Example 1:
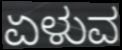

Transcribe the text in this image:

ಏಳುವ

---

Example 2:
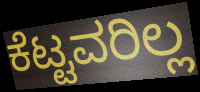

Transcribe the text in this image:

ಕೆಟ್ಟವರಿಲ್ಲ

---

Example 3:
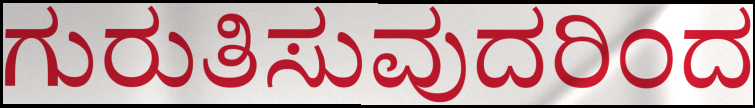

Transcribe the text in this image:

ಗುರುತಿಸುವುದರಿಂದ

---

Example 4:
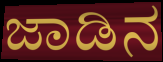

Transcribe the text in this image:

ಜಾಡಿನ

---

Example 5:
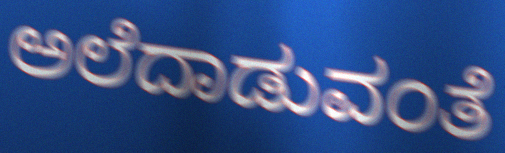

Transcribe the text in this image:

ಅಲೆದಾಡುವಂತೆ